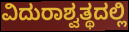
ವಿದುರಾಶ್ವತ್ಥದಲ್ಲಿ